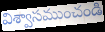
విశ్వాసముంచండి